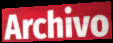
Archivo